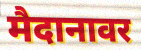
मैदानावर